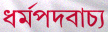
ধর্মপদবাচ্য